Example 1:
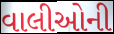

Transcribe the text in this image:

વાલીઓની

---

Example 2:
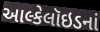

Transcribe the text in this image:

આલ્કેલૉઇડનાં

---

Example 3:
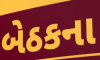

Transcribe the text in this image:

બેઠકના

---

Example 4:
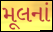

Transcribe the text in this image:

મૂલનાં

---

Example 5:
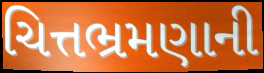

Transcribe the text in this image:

ચિત્તભ્રમણાની